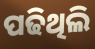
ପଢିଥିଲି